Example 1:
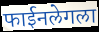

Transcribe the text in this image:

फाईनलेगला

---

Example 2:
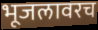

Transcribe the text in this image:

भूजलावरच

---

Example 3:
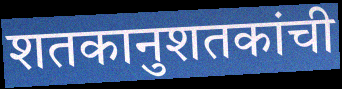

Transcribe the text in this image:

शतकानुशतकांची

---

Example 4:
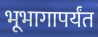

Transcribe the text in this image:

भूभागापर्यंत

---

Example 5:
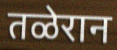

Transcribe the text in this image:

तळेरान